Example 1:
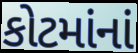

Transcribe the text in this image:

કોટમાંનાં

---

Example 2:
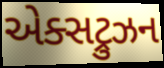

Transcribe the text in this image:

એક્સટ્રુઝન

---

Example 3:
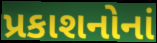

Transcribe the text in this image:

પ્રકાશનોનાં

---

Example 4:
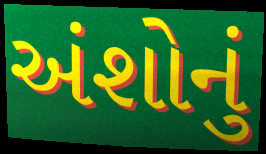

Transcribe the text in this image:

અંશોનું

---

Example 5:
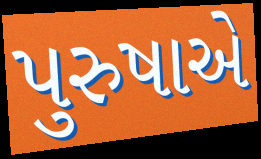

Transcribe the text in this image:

પુરુષાએ